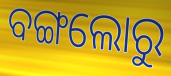
ବଙ୍ଗଲୋରୁ